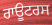
ਰਾਊਟਰਸ